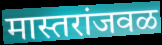
मास्तरांजवळ